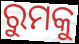
ରୁମକୁ